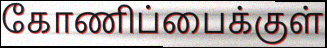
கோணிப்பைக்குள்